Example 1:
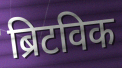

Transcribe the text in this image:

ब्रिटविक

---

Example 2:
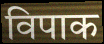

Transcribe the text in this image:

विपाक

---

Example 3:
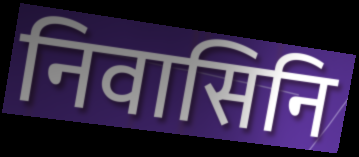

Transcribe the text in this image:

निवासिनि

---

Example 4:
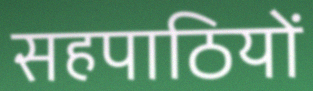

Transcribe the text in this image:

सहपाठियों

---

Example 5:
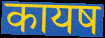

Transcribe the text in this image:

कायष